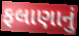
ફલાણાનું